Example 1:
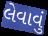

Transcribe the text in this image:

લેવાવું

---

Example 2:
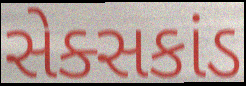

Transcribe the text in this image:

સેક્સકાંડ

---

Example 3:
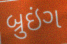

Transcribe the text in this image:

બ્રુઇંગ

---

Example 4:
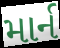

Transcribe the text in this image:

માર્ન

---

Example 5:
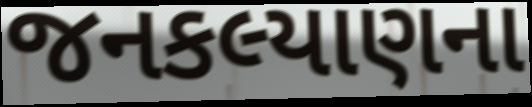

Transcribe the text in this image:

જનકલ્યાણના